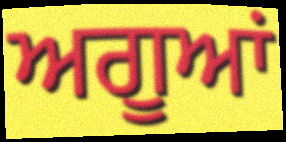
ਅਗੂਆਂ